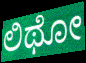
ಲಿಥೋ